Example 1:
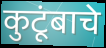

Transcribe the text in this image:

कुटूंबाचे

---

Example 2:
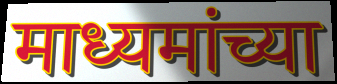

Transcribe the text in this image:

माध्यमांच्या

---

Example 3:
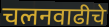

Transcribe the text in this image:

चलनवाढीचे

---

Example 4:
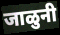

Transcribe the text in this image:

जाळुनी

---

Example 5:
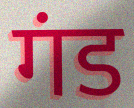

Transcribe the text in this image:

गंड